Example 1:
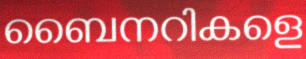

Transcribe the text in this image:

ബൈനറികളെ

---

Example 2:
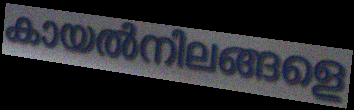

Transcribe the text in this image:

കായൽനിലങ്ങളെ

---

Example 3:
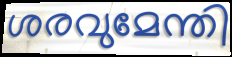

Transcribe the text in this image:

ശരവുമേന്തി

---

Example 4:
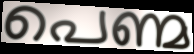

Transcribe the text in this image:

പെണ്മ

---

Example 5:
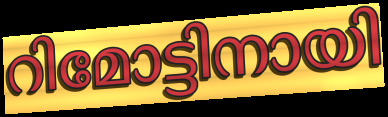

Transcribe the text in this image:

റിമോട്ടിനായി